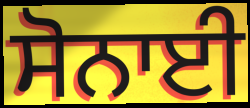
ਸੋਨਾਈ